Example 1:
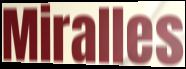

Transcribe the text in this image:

Miralles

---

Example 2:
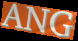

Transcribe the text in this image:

ANG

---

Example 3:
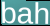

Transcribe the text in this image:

bah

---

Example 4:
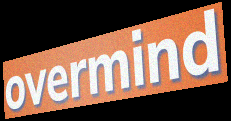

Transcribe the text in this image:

overmind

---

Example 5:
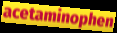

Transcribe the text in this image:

acetaminophen